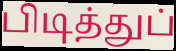
பிடித்துப்